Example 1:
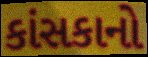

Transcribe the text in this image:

કાંસકાનો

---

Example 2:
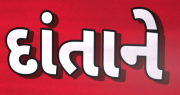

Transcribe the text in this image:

દાંતાને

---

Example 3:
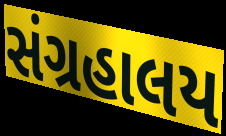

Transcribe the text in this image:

સંગ્રહાલય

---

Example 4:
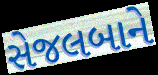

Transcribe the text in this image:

સેજલબાને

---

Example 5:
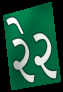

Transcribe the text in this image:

રેર